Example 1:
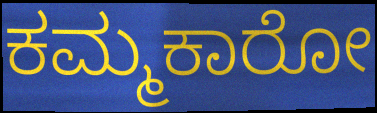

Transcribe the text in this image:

ಕಮ್ಮಕಾರೋ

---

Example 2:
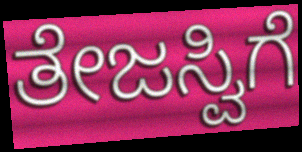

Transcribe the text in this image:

ತೇಜಸ್ವಿಗೆ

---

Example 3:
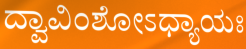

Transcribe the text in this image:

ದ್ವಾವಿಂಶೋಽಧ್ಯಾಯಃ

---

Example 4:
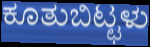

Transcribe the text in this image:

ಕೂತುಬಿಟ್ಟಳು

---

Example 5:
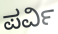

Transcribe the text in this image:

ಪರ್ವಿ